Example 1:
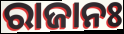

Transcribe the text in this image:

ରାଜାନଃ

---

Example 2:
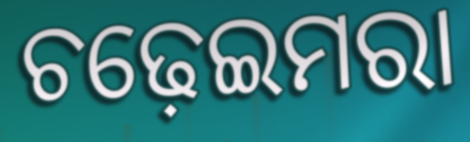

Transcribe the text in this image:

ଚଢ଼େଇମରା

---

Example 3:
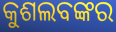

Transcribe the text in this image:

କୁଶଲବଙ୍କର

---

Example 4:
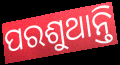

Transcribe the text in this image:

ପରଶୁଥାନ୍ତି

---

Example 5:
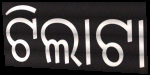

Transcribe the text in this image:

ଟିଲାଟା